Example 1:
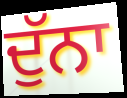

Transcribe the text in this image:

ਦੁੱਨਾ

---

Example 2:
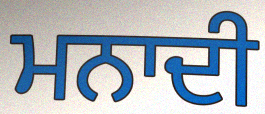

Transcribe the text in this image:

ਮਨਾਦੀ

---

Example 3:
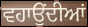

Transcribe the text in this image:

ਵਹਾਉਂਦੀਆਂ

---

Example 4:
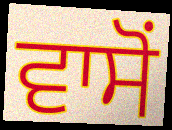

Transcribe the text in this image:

ਵਾਸੋਂ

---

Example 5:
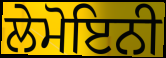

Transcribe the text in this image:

ਲੇਮੋਇਨੀ